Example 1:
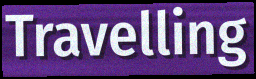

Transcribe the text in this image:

Travelling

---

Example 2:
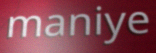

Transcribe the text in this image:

maniye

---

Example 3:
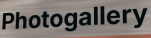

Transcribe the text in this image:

Photogallery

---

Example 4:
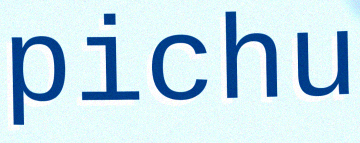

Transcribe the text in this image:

pichu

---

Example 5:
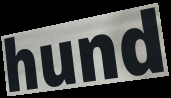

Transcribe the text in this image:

hund